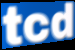
tcd